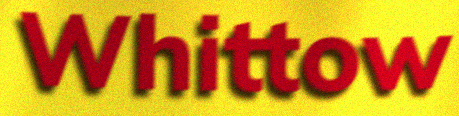
Whittow